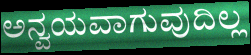
ಅನ್ವಯವಾಗುವುದಿಲ್ಲ